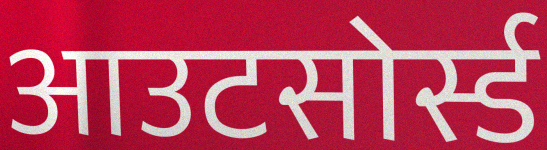
आउटसोर्स्ड